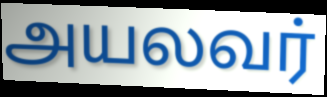
அயலவர்